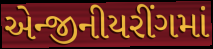
એન્જીનીયરીંગમાં